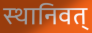
स्थानिवत्